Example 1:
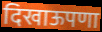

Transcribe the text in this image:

दिखाऊपणा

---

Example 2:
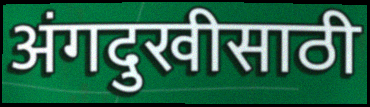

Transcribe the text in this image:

अंगदुखीसाठी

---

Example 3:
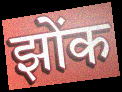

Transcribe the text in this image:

झोंक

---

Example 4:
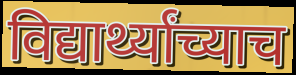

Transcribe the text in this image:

विद्यार्थ्यांच्याच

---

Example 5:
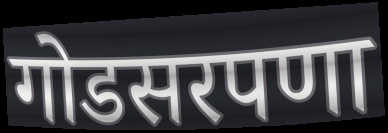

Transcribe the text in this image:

गोडसरपणा